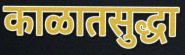
काळातसुद्धा